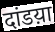
दांडय़ा